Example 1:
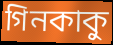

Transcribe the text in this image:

গিনকাকু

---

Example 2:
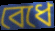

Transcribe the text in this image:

বেধে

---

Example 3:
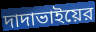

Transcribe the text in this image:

দাদাভাইয়ের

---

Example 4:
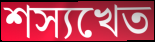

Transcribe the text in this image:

শস্যখেত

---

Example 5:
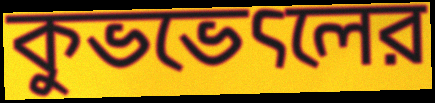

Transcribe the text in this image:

কুভভেৎলের